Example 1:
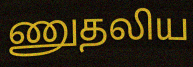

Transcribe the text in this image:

ணுதலிய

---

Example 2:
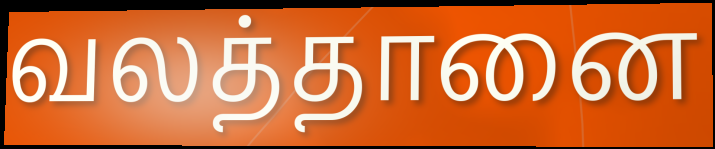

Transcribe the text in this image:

வலத்தானை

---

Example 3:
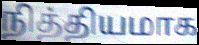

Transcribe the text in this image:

நித்தியமாக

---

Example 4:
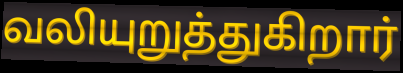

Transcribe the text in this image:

வலியுறுத்துகிறார்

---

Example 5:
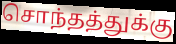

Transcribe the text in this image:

சொந்தத்துக்கு